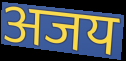
अजय